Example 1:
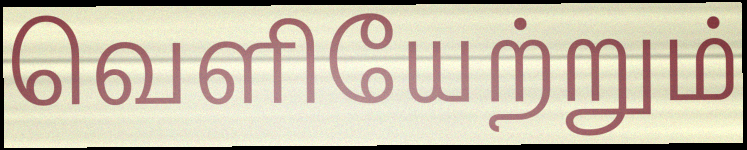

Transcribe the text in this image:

வெளியேற்றும்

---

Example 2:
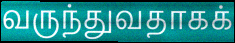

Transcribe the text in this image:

வருந்துவதாகக்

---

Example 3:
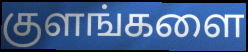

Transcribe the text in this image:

குளங்களை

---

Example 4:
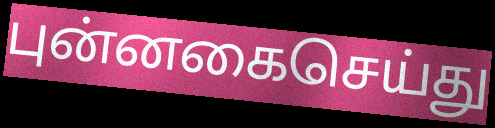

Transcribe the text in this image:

புன்னகைசெய்து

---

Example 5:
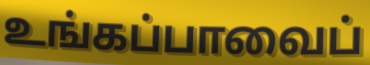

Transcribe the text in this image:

உங்கப்பாவைப்